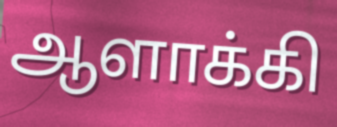
ஆளாக்கி